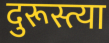
दुरूस्त्या